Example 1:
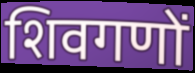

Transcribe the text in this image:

शिवगणों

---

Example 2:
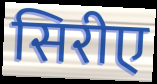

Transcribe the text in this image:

सिरीए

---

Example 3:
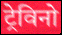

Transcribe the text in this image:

ट्रेविनो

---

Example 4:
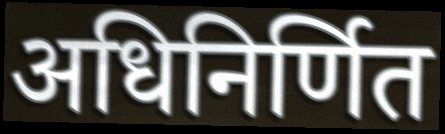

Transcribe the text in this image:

अधिनिर्णित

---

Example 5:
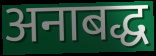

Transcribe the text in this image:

अनाबद्ध